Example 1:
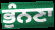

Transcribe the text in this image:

ਭੁੰਨਣਾ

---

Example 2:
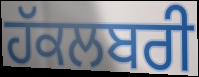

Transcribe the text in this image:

ਹੱਕਲਬਰੀ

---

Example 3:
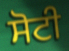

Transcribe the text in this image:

ਸੋਟੀ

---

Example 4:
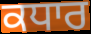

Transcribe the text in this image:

ਕਧਾਰ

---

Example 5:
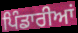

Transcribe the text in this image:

ਪਿੰਡਾਰੀਆਂ